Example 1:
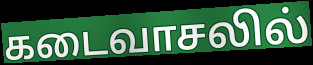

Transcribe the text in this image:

கடைவாசலில்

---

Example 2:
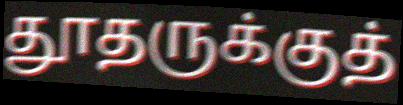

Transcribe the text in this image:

தூதருக்குத்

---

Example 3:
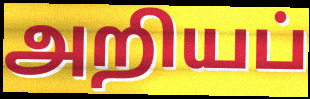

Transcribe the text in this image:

அறியப்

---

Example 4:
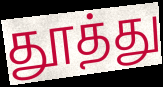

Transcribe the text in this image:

தூத்து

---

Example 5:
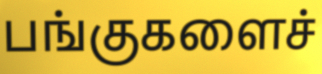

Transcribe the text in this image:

பங்குகளைச்